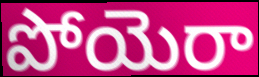
పోయెరా